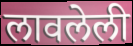
लावलेली